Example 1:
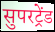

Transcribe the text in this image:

सुपरट्रेंड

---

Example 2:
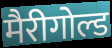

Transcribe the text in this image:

मैरीगोल्ड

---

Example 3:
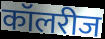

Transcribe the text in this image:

कॉलरीज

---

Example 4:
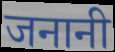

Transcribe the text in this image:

जनानी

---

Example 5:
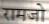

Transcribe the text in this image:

रामजो